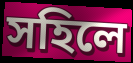
সহিলে